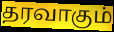
தரவாகும்